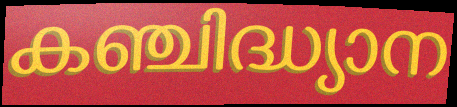
കഞ്ചിദ്ധ്യാന